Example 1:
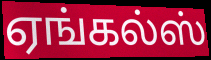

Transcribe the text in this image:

ஏங்கல்ஸ்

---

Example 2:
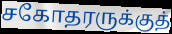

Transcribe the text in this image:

சகோதரருக்குத்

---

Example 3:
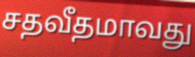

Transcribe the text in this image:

சதவீதமாவது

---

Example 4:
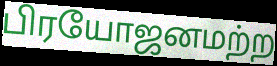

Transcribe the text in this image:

பிரயோஜனமற்ற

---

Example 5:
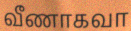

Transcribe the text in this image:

வீணாகவா